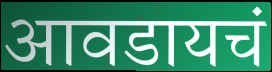
आवडायचं